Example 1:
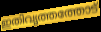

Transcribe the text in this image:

ഇതിവൃത്തത്തോട്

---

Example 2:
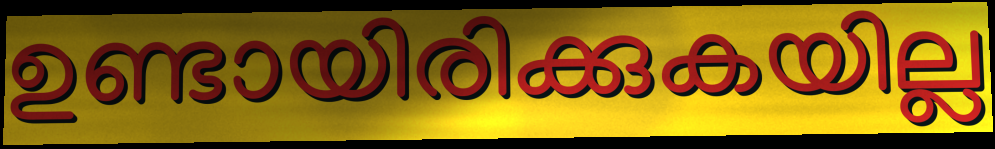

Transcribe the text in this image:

ഉണ്ടായിരിക്കുകയില്ല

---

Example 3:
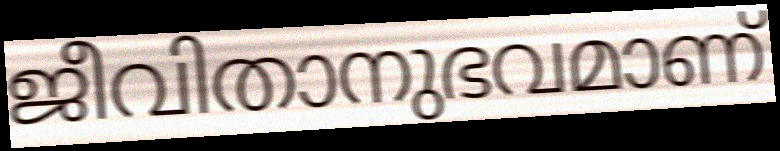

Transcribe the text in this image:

ജീവിതാനുഭവമാണ്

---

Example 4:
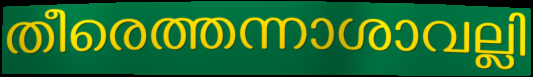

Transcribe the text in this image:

തീരെത്തന്നാശാവല്ലി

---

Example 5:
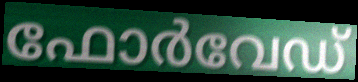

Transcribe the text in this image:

ഫോർവേഡ്